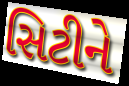
સિટીને